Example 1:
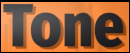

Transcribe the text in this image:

Tone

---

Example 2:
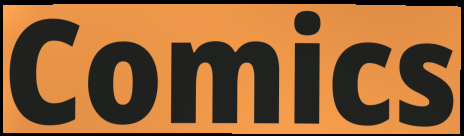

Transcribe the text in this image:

Comics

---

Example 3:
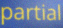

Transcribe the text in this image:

partial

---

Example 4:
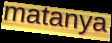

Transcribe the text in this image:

matanya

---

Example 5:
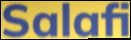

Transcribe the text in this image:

Salafi